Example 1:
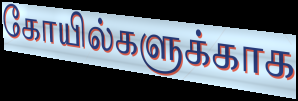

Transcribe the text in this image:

கோயில்களுக்காக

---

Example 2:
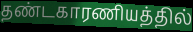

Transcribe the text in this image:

தண்டகாரணியத்தில்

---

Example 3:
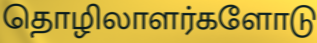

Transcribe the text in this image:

தொழிலாளர்களோடு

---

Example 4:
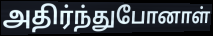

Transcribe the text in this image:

அதிர்ந்துபோனாள்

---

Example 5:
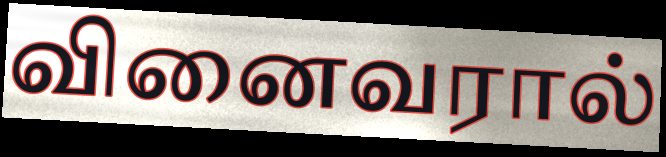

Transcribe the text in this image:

வினைவரால்